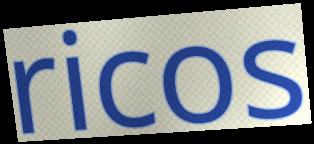
ricos